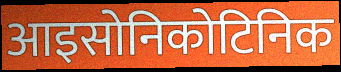
आइसोनिकोटिनिक